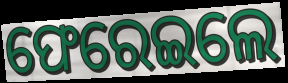
ଫେରେଇଲେ